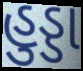
હુડ્ડા